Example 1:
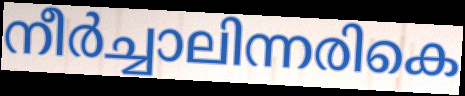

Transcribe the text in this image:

നീർച്ചാലിന്നരികെ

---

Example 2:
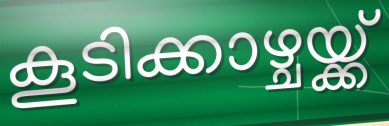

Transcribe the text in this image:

കൂടിക്കാഴ്ചയ്ക്ക്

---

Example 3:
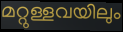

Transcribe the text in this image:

മറ്റുള്ളവയിലും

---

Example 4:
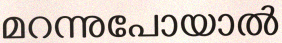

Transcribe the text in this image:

മറന്നുപോയാൽ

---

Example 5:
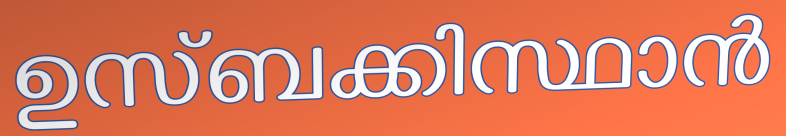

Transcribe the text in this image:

ഉസ്ബക്കിസ്ഥാൻ